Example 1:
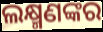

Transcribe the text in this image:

ଲକ୍ଷ୍ମଣଙ୍କର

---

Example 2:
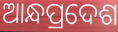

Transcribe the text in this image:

ଆନ୍ଧପ୍ରଦେଶ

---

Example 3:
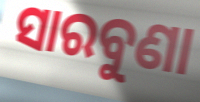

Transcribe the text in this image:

ସାରବୁଣା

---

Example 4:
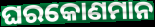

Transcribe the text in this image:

ଘରକୋଣମାନ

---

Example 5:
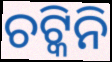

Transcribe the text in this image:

ଚଟ୍କିନି